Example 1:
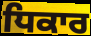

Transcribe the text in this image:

ਧਿਕਾਰ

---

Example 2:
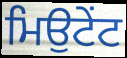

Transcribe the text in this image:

ਮਿਉਟੇਂਟ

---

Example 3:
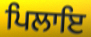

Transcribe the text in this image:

ਪਿਲਾਇ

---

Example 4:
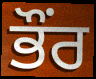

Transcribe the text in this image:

ਭੌਂਰ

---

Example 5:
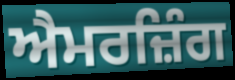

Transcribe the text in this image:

ਐਮਰਜ਼ਿੰਗ